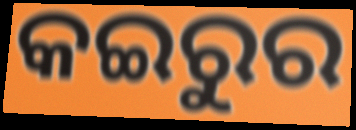
କଇରୁର